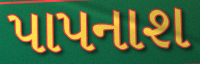
પાપનાશ